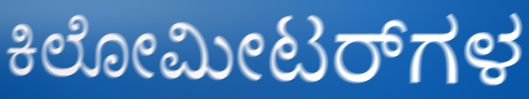
ಕಿಲೋಮೀಟರ್‌ಗಳ